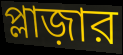
প্লাজ়ার